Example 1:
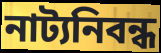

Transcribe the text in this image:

নাট্যনিবন্ধ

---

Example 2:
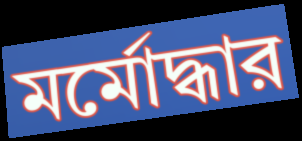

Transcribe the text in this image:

মর্মোদ্ধার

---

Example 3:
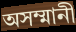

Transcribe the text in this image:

অসম্মানী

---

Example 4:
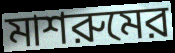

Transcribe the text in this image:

মাশরুমের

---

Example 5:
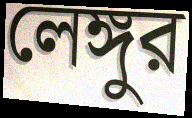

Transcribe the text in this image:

লেঙ্গুর